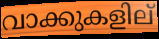
വാക്കുകളില്